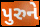
પુરુને